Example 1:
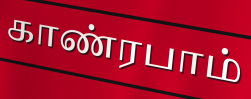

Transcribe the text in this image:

காண்ரபாம்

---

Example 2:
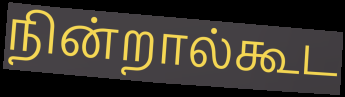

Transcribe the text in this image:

நின்றால்கூட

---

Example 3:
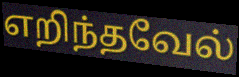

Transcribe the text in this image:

எறிந்தவேல்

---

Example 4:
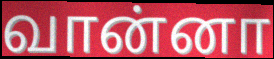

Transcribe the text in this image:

வான்னா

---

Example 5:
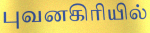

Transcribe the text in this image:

புவனகிரியில்